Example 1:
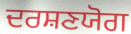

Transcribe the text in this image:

ਦਰਸ਼ਣਯੋਗ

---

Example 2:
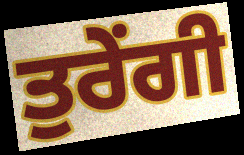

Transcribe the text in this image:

ਤੁਰੇਂਗੀ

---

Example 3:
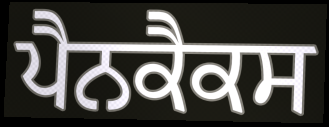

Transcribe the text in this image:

ਪੈਨਕੈਕਸ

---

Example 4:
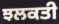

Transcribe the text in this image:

ਝਲਕਤੀ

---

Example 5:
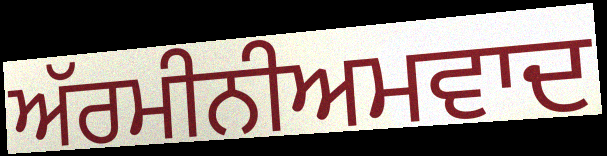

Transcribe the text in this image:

ਅੱਰਮੀਨੀਅਮਵਾਦ